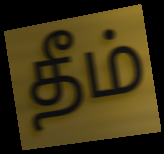
தீம்